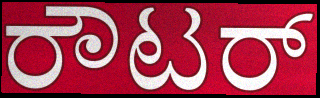
ರೌಟರ್